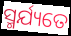
ସ୍ମର୍ଯ୍ୟତେ